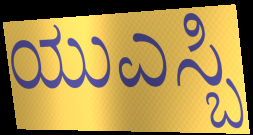
ಯುಎಸ್ಬಿ